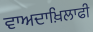
ਵਾਅਦਾਖ਼ਿਲਾਫੀ